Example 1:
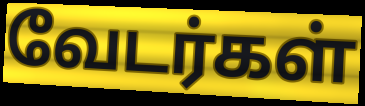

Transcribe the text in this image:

வேடர்கள்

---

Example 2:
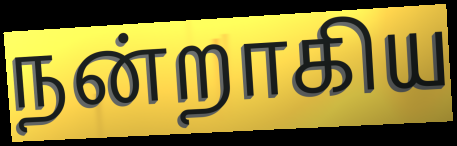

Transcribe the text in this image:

நன்றாகிய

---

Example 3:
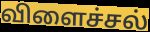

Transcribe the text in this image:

விளைச்சல்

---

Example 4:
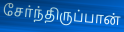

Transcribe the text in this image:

சேர்ந்திருப்பான்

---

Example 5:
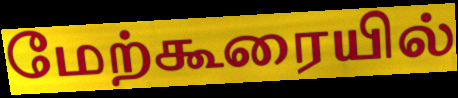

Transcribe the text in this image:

மேற்கூரையில்